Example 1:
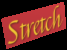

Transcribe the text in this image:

Stretch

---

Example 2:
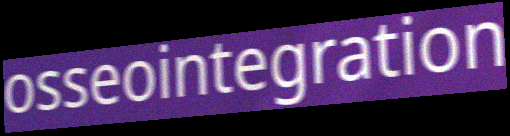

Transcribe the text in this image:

osseointegration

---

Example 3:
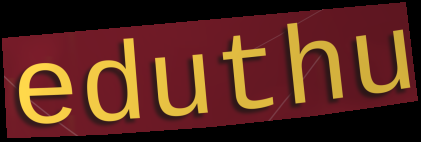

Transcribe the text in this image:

eduthu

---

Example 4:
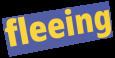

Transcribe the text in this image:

fleeing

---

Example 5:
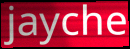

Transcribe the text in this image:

jayche